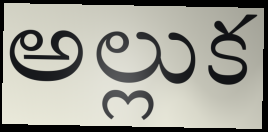
అల్లుక